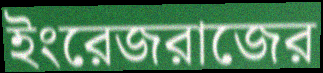
ইংরেজরাজের